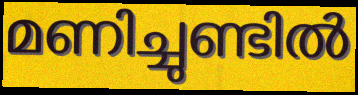
മണിച്ചുണ്ടിൽ